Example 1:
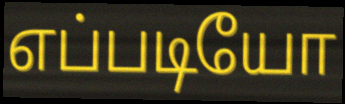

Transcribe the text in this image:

எப்படியோ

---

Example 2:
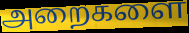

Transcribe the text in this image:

அறைகளை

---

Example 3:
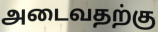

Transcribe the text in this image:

அடைவதற்கு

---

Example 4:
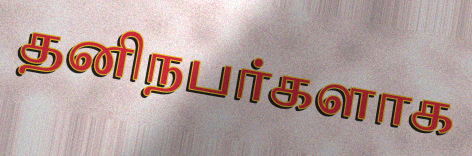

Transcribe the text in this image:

தனிநபர்களாக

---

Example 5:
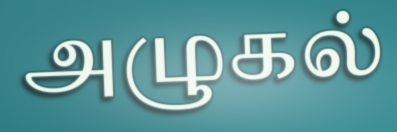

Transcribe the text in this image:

அழுகல்